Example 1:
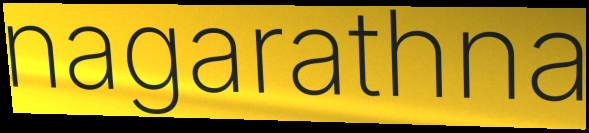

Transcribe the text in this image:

nagarathna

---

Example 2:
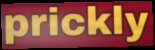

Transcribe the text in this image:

prickly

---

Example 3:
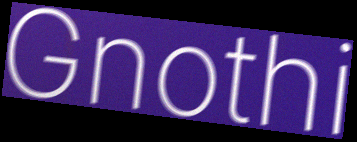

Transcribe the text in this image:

Gnothi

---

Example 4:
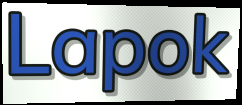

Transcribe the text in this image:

Lapok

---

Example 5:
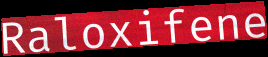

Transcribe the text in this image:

Raloxifene